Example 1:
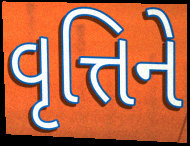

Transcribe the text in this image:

વૃત્તિને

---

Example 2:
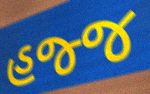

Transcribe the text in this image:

હજ્જ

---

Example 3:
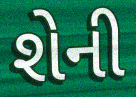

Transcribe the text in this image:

શેની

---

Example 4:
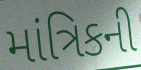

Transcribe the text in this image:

માંત્રિકની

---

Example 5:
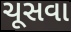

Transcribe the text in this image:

ચૂસવા